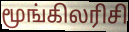
மூங்கிலரிசி